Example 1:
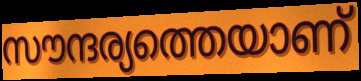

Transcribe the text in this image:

സൗന്ദര്യത്തെയാണ്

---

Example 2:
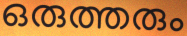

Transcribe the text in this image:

ഒരുത്തരും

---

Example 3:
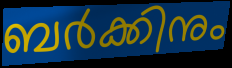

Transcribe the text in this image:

ബർക്കിനും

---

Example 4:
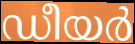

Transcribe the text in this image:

ഡീയർ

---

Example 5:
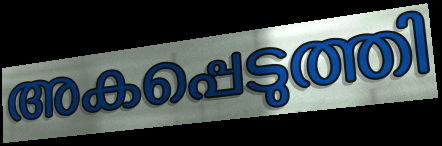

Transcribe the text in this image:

അകപ്പെടുത്തി